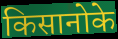
किसानोके